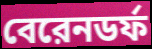
বেরেনডর্ফ